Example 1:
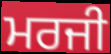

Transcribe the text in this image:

ਮਰਜੀ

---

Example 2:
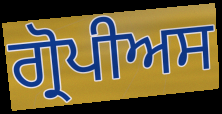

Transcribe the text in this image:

ਗ੍ਰੋਪੀਅਸ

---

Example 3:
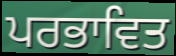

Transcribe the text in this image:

ਪਰਭਾਵਿਤ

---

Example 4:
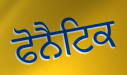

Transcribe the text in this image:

ਫੋਨੈਟਿਕ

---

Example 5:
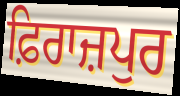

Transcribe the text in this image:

ਫ਼ਿਰਾਜ਼ਪੁਰ